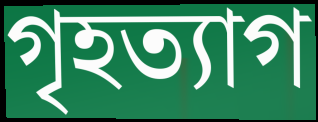
গৃহত্যাগ